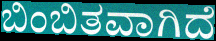
ಬಿಂಬಿತವಾಗಿದೆ